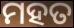
ମହତ